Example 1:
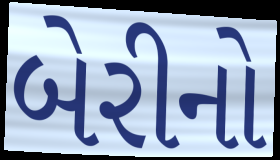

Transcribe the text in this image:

બેરીનો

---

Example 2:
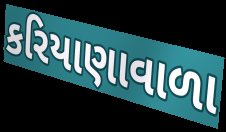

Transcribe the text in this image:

કરિયાણાવાળા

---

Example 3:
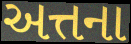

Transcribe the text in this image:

અત્તના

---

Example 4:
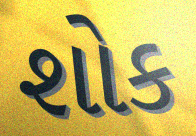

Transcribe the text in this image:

શોક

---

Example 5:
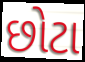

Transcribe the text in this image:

છોટા